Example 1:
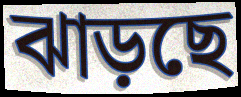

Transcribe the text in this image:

ঝাড়ছে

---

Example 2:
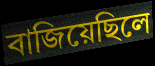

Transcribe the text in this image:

বাজিয়েছিলে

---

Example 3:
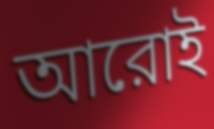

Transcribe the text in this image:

আরোই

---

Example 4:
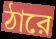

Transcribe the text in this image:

ঠারে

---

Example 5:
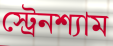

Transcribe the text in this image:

স্ট্রেনশ্যাম